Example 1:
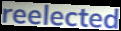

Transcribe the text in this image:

reelected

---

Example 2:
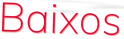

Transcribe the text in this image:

Baixos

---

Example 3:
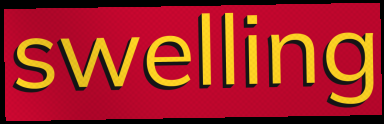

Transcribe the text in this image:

swelling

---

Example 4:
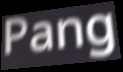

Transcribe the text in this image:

Pang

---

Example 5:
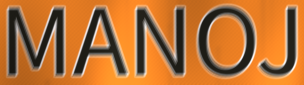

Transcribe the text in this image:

MANOJ